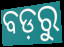
ବଡ଼ରୁ